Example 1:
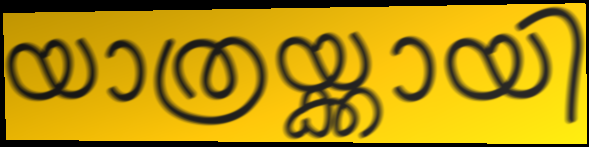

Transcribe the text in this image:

യാത്രയ്ക്കായി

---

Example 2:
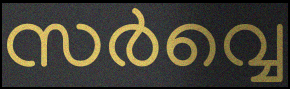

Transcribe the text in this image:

സർവ്വെ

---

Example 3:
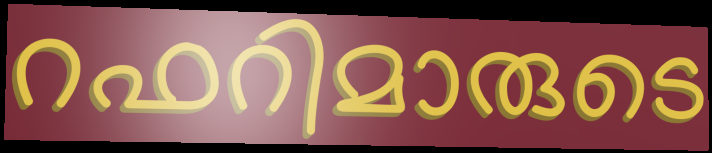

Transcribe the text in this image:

റഫറിമാരുടെ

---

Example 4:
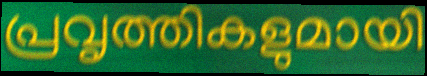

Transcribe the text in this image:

പ്രവൃത്തികളുമായി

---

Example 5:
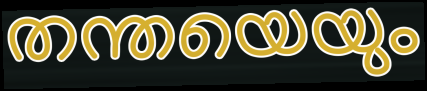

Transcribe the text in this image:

തന്തയെയും